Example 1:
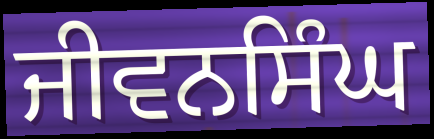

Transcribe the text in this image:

ਜੀਵਨਸਿੰਘ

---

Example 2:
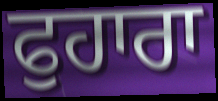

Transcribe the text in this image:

ਫੁਹਾਰਾ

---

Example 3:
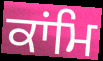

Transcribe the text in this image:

ਕਾਂਮਿ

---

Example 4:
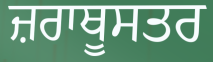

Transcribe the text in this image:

ਜ਼ਰਾਥੂਸਤਰ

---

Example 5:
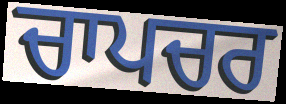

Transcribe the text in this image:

ਚਾਪਚਰ